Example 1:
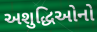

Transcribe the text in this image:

અશુદ્ધિઓનો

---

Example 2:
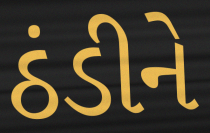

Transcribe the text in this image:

ઠંડીને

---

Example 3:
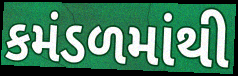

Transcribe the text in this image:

કમંડળમાંથી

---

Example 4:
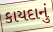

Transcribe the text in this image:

કાયદાનું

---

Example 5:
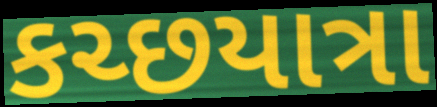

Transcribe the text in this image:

કચ્છયાત્રા